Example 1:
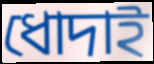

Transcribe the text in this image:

ধোদাই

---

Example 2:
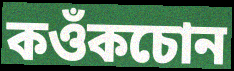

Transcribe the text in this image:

কওঁকচোন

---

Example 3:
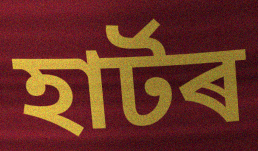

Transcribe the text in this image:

হাৰ্টৰ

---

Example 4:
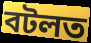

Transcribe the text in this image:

বটলত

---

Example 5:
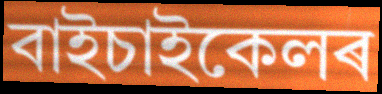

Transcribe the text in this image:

বাইচাইকেলৰ